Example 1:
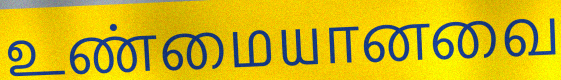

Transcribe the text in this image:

உண்மையானவை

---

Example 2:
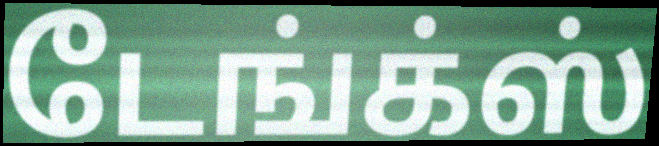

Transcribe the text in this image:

டேங்க்ஸ்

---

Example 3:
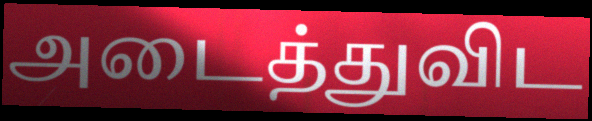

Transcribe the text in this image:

அடைத்துவிட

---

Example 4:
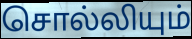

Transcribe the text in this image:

சொல்லியும்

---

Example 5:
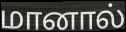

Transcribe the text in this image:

மானால்